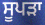
ਸੂਪੜਾ